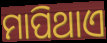
ମାପିଥାଏ